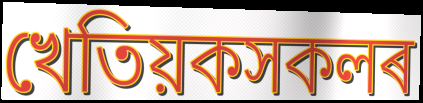
খেতিয়কসকলৰ